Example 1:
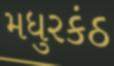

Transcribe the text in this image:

મધુરકંઠ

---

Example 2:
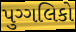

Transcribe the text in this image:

પુગ્ગલિકો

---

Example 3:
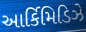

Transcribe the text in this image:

આર્કિમિડિઝે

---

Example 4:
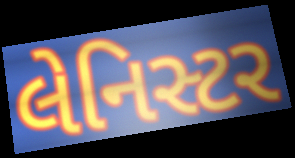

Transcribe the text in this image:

લેનિસ્ટર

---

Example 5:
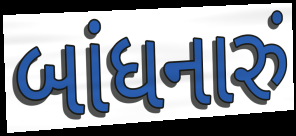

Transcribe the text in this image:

બાંધનારું